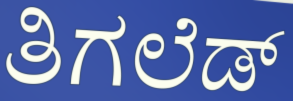
ತಿಗಲೆಡ್